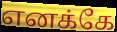
எனக்கே